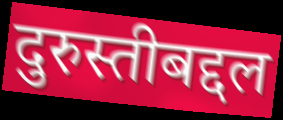
दुरुस्तीबद्दल